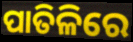
ପାତିଳିରେ